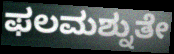
ಫಲಮಶ್ನುತೇ